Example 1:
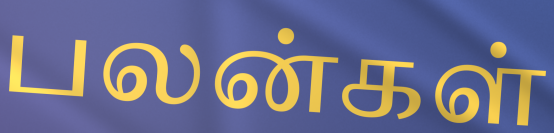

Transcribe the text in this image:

பலன்கள்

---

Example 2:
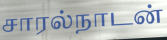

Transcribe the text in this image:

சாரல்நாடன்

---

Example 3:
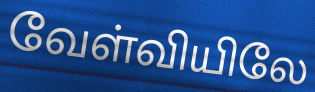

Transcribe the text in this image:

வேள்வியிலே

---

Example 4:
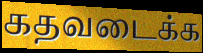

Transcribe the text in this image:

கதவடைக்க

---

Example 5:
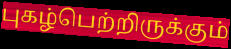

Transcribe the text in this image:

புகழ்பெற்றிருக்கும்